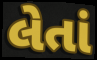
લેતાં